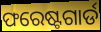
ଫରେଷ୍ଟଗାର୍ଡ